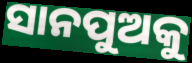
ସାନପୁଅକୁ